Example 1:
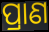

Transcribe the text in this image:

ପ୍ରାଣ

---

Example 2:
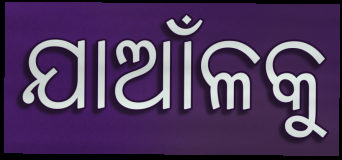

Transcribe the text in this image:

ଯାଆଁଳକୁ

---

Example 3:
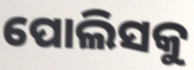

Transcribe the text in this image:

ପୋଲିସକୁ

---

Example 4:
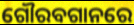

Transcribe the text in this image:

ଗୌରବଗାନରେ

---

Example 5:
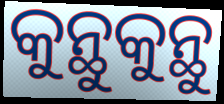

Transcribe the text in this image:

କୁନ୍ଥୁକୁନ୍ଥୁ